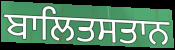
ਬਾਲਿਤਸਤਾਨ